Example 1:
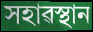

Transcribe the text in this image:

সহাৱস্থান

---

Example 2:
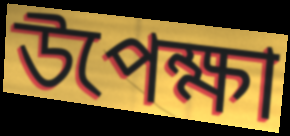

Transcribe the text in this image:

উপেক্ষা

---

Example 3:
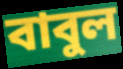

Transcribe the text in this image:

বাবুল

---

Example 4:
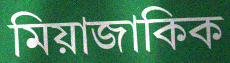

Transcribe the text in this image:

মিয়াজাকিক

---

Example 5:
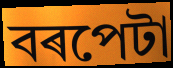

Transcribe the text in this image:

বৰপেটা